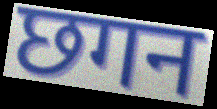
छगन